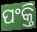
ପଂକ୍ତି